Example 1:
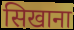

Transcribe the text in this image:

सिखाना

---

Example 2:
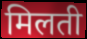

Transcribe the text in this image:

मिलती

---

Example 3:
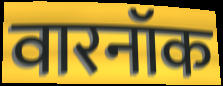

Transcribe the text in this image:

वारनॉक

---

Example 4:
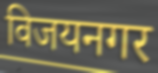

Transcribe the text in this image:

विजयनगर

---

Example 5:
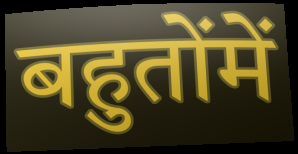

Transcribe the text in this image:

बहुतोंमें